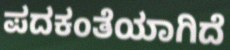
ಪದಕಂತೆಯಾಗಿದೆ